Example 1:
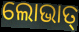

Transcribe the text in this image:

ଲୋଭାତ୍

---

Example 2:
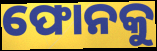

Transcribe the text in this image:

ଫୋନକୁ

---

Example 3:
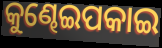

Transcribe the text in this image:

କୁଣ୍ଢେଇପକାଇ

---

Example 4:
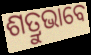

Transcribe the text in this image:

ଶତ୍ରୁଭାବେ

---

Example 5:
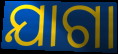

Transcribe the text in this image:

ଯାଗା